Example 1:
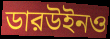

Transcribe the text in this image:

ডারউইনও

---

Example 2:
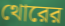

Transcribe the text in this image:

থোরের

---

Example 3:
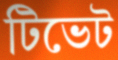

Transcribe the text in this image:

টিভেট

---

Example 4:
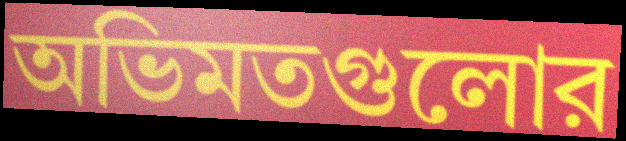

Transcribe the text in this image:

অভিমতগুলোর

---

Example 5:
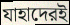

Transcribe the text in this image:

যাহাদেরই